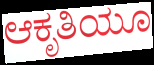
ಆಕೃತಿಯೂ